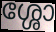
ശ്ശോ